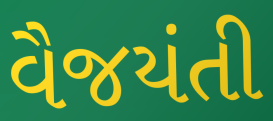
વૈજયંતી